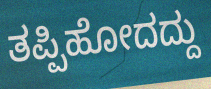
ತಪ್ಪಿಹೋದದ್ದು